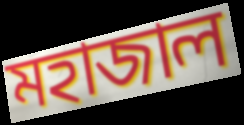
মহাজাল